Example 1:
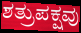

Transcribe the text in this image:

ಶತ್ರುಪಕ್ಷವು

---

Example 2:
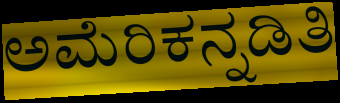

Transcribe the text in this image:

ಅಮೆರಿಕನ್ನಡಿತಿ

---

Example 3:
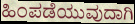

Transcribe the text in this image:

ಹಿಂಪಡೆಯುವುದಾಗಿ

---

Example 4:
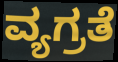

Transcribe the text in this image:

ವ್ಯಗ್ರತೆ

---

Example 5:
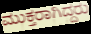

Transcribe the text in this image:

ಮುಕ್ತರಾಗಿದ್ದರು